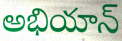
అభియాన్